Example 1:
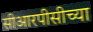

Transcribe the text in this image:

सीआरपीसीच्या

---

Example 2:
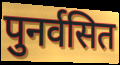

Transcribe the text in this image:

पुनर्वसित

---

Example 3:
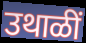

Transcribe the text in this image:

उथाळीं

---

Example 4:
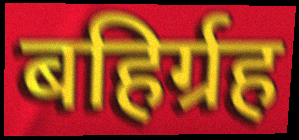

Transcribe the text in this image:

बहिर्ग्रह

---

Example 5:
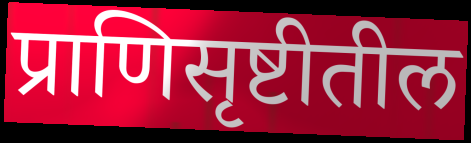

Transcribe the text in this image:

प्राणिसृष्टीतील